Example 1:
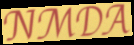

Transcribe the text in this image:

NMDA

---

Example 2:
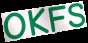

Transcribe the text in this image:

OKFS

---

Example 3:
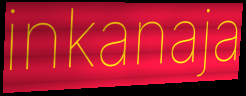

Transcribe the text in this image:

inkanaja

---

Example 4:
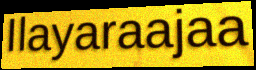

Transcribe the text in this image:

Ilayaraajaa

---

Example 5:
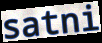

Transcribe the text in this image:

satni